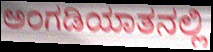
ಅಂಗಡಿಯಾತನಲ್ಲಿ